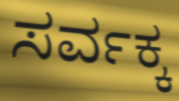
ಸರ್ವಕ್ಕ